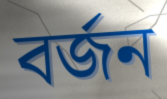
বৰ্জন